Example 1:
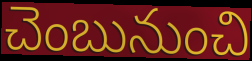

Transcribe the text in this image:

చెంబునుంచి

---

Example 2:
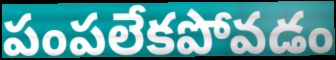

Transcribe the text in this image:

పంపలేకపోవడం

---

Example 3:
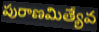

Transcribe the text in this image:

పురాణమిత్యేవ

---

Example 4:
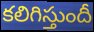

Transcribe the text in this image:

కలిగిస్తుందీ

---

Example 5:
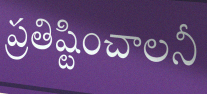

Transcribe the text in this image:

ప్రతిష్టించాలనీ